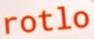
rotlo